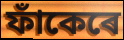
ফাঁকেৰে